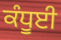
ਕੰਧੂਈ